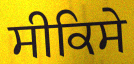
ਸੀਕਿਸੇ